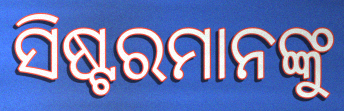
ସିଷ୍ଟରମାନଙ୍କୁ